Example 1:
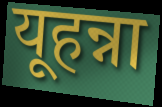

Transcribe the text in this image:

यूहन्ना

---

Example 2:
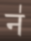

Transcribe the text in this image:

न॑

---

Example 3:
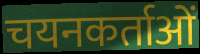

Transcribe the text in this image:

चयनकर्ताओं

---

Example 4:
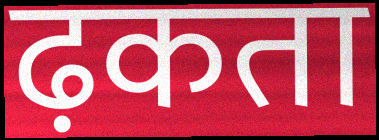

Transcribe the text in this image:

ढ़कता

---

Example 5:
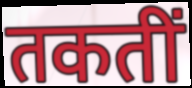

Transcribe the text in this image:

तकतीं